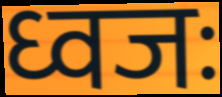
ध्वजः